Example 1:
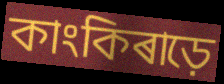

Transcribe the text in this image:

কাংকিৰাড়ে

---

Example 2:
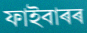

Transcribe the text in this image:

ফাইবাৰৰ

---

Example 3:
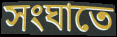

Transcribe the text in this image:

সংঘাতে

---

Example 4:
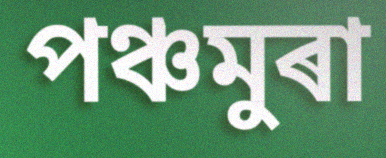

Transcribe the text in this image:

পঞ্চমুৰা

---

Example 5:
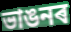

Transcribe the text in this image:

ভাঙনৰ